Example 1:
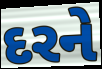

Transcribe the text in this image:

દરને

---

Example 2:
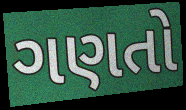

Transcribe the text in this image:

ગણતો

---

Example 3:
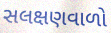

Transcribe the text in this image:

સલક્ષણવાળો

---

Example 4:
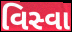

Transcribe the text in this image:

વિસ્વા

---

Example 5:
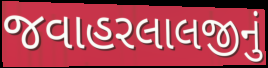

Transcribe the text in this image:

જવાહરલાલજીનું